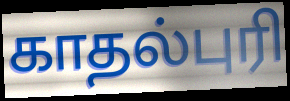
காதல்புரி